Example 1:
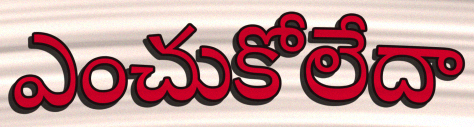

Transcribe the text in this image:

ఎంచుకోలేదా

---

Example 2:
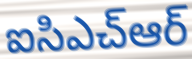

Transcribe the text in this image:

ఐసిఎచ్ఆర్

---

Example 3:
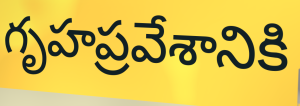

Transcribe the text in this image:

గృహప్రవేశానికి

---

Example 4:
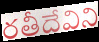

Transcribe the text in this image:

రతీదేవిని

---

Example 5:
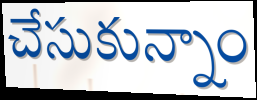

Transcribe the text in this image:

చేసుకున్నాం